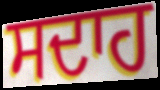
ਸਦਾਹ